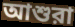
আশুরা